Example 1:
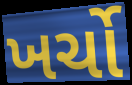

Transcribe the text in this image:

ખર્ચો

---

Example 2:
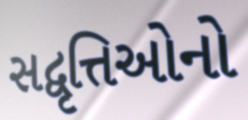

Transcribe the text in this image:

સદ્વૃત્તિઓનો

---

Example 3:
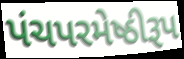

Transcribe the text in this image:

પંચપરમેષ્ઠીરૂપ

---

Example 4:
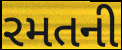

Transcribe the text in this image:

રમતની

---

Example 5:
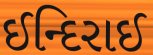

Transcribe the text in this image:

ઈન્દિરાઈ